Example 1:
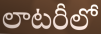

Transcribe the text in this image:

లాటరీలో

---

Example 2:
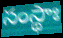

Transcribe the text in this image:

సంస్థాః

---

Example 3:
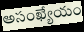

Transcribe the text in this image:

అసంఖ్యేయం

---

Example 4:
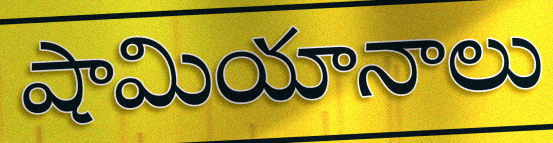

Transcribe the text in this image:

షామియానాలు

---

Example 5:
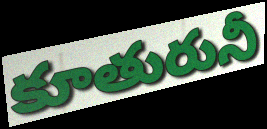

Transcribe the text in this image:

కూతురునీ